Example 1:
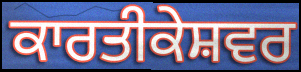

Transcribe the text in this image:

ਕਾਰਤੀਕੇਸ਼ਵਰ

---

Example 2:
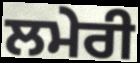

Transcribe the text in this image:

ਲਮੇਰੀ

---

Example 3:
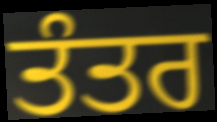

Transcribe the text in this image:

ਤੰਤਰ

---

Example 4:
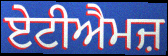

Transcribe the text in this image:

ਏਟੀਐਮਜ਼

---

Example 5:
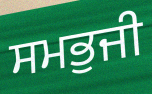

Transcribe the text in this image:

ਸਮਭੁਜੀ